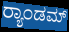
ರ್‍ಯಾಂಡಮ್